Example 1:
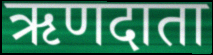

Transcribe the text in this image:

ऋणदाता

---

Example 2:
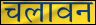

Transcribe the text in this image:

चलावन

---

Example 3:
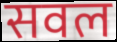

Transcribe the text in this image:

सवल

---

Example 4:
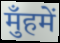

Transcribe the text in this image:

मुँहमें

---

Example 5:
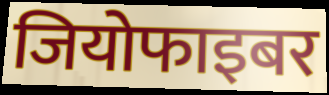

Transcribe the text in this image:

जियोफाइबर